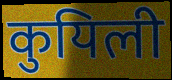
कुयिली